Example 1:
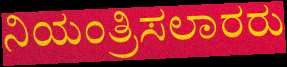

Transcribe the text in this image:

ನಿಯಂತ್ರಿಸಲಾರರು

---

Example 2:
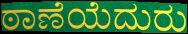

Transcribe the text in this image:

ಠಾಣೆಯೆದುರು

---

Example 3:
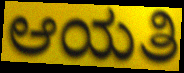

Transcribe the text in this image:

ಆಯತಿ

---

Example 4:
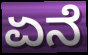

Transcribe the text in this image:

ಏನೆ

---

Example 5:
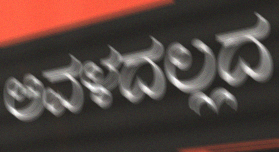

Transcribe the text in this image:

ಅವಳದಲ್ಲದ